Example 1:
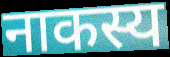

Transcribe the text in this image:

नाकस्य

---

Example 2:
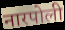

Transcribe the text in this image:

नारपोली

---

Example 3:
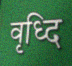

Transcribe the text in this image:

वृध्दि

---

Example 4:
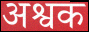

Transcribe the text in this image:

अश्वक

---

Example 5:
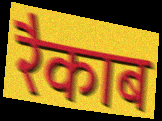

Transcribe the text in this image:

रैकाब